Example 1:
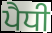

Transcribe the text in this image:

ਪੈਧੀ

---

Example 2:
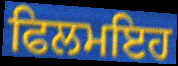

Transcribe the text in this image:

ਫਿਲਮਇਹ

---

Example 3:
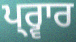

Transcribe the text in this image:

ਪ੍ਰ੍ਵਾਰ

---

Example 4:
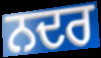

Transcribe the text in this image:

ਨਦਰ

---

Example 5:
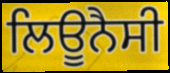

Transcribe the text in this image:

ਲਿਊਨੈਸੀ